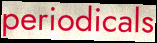
periodicals